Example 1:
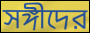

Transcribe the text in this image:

সঙ্গীদের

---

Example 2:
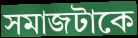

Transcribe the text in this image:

সমাজটাকে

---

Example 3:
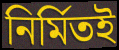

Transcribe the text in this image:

নির্মিতই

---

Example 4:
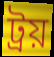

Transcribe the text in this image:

ট্রয়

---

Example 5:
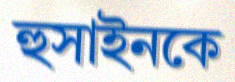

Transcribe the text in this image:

হুসাইনকে